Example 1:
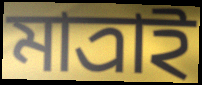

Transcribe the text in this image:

মাত্রাই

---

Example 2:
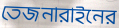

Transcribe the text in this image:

তেজনারাইনের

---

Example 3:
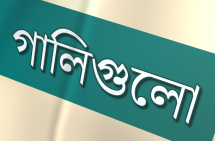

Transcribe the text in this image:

গালিগুলো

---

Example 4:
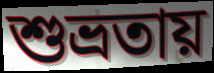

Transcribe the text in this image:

শুভ্রতায়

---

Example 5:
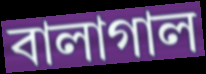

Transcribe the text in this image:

বালাগাল